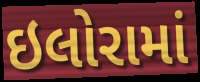
ઇલોરામાં